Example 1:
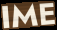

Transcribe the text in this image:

IME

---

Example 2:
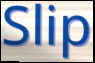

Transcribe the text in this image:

Slip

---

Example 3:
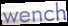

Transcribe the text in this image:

wench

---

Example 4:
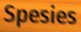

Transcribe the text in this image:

Spesies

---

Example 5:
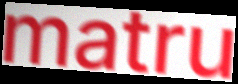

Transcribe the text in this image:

matru